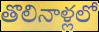
తొలినాళ్లలో